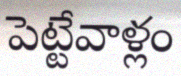
పెట్టేవాళ్లం